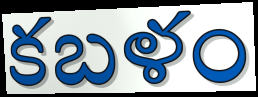
కబళం